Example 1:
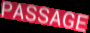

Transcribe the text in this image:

PASSAGE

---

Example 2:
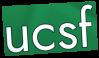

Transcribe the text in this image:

ucsf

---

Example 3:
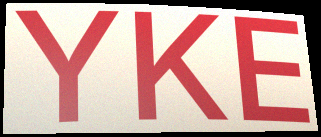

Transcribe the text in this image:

YKE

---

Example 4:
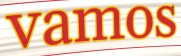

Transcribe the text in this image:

vamos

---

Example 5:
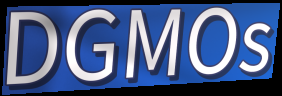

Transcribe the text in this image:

DGMOs